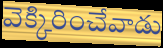
వెక్కిరించేవాడు